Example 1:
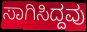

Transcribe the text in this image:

ಸಾಗಿಸಿದ್ದವು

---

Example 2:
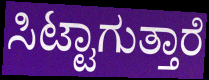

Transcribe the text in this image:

ಸಿಟ್ಟಾಗುತ್ತಾರೆ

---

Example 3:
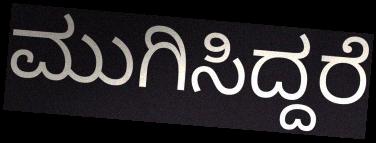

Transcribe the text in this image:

ಮುಗಿಸಿದ್ದರೆ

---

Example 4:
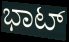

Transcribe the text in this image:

ಭಾಟ್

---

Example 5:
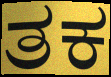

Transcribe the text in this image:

ತಕ